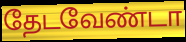
தேடவேண்டா